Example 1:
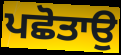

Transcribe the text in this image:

ਪਛੋਤਾਉ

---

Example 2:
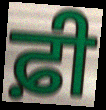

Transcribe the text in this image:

ਫ਼ੀ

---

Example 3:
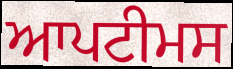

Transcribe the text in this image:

ਆਪਟੀਮਸ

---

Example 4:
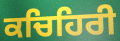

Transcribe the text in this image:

ਕਚਿਹਿਰੀ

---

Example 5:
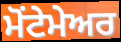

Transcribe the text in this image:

ਮੋਂਟੇਮੇਅਰ